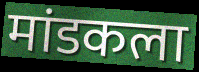
मांडकला